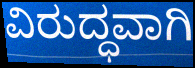
ವಿರುದ್ಧವಾಗಿ